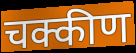
चक्कीण